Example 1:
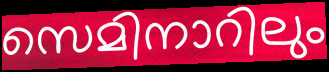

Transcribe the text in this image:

സെമിനാറിലും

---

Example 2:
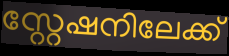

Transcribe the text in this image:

സ്റ്റേഷനിലേക്ക്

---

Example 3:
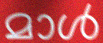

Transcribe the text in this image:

മാൾ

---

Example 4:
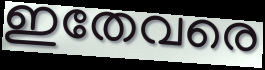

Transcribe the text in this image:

ഇതേവരെ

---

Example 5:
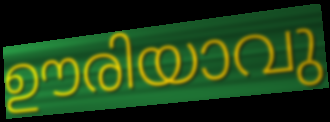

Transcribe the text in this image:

ഊരിയാവു